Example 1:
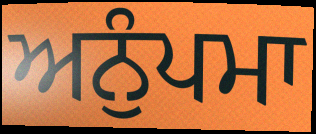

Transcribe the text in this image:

ਅਨੁੰਪਮਾ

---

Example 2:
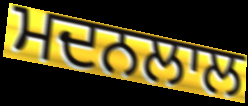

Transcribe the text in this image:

ਮਦਨਲਾਲ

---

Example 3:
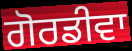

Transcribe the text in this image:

ਗੋਰਡੀਵਾ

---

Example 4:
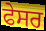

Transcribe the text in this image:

ਫੇਸਰ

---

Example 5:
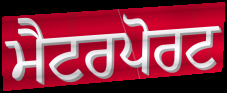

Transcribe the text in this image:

ਮੈਟਰਪੋਰਟ